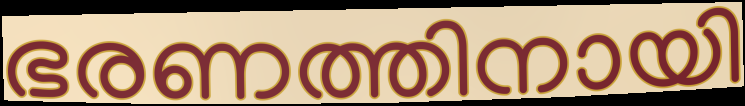
ഭരണത്തിനായി